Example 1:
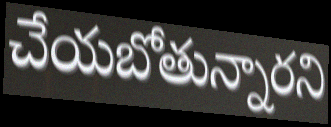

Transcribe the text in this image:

చేయబోతున్నారని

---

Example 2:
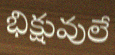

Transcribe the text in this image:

భిక్షువులే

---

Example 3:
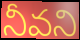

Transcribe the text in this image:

నీవని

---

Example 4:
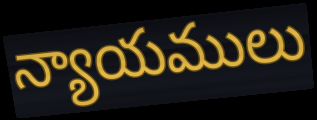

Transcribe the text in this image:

న్యాయములు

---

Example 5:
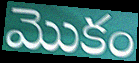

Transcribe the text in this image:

మొకం